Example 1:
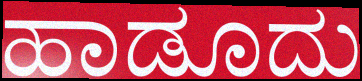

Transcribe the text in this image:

ಹಾಡೂದು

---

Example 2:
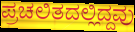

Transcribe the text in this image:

ಪ್ರಚಲಿತದಲ್ಲಿದ್ದವು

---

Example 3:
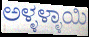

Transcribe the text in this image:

ಅಳ್ಳಳ್ಳಾಯಿ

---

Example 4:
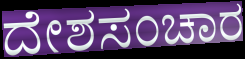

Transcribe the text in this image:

ದೇಶಸಂಚಾರ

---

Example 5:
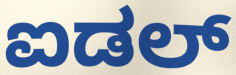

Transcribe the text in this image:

ಐಡಲ್